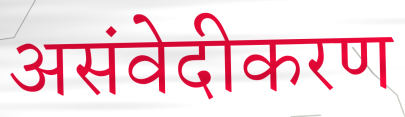
असंवेदीकरण